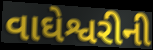
વાઘેશ્વરીની